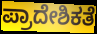
ಪ್ರಾದೇಶಿಕತೆ